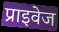
प्राइवेज